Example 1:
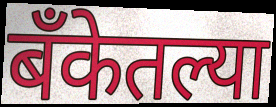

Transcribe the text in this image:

बँकेतल्या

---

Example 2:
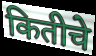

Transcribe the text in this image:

कितीचे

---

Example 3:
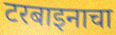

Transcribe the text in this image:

टरबाइनाचा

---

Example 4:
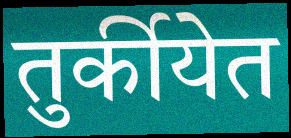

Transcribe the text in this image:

तुर्कीयेत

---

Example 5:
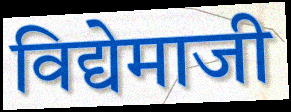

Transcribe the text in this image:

विद्येमाजी